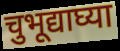
चुभूद्याघ्या